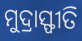
ମୁଦ୍ରାସ୍ଫୀତି